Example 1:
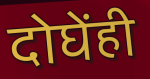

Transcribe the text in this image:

दोघेंही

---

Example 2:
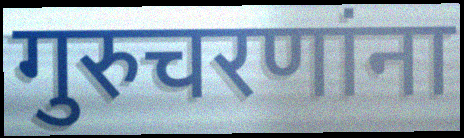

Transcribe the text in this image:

गुरुचरणांना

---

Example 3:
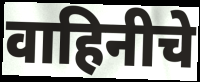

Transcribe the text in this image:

वाहिनीचे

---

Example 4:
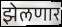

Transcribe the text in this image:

झेलणार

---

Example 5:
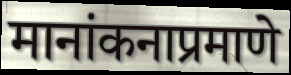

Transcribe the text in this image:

मानांकनाप्रमाणे